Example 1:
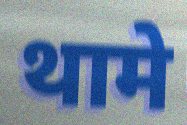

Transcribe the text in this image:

थामे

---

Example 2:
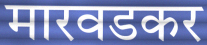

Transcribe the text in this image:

मारवडकर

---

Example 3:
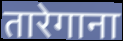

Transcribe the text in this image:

तारेगाना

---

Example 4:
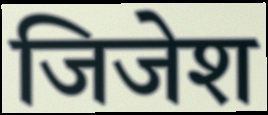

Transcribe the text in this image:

जिजेश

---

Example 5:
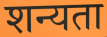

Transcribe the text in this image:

शन्यता